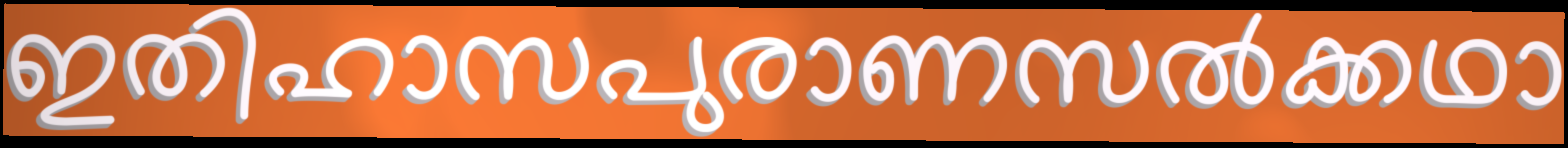
ഇതിഹാസപുരാണസൽക്കഥാ